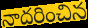
నాదరించిన